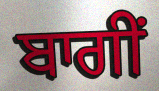
ਬਾਗੀਂ